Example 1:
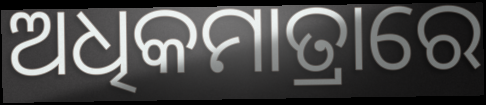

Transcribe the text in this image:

ଅଧିକମାତ୍ରାରେ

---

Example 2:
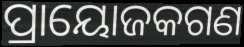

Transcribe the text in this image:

ପ୍ରାୟୋଜକଗଣ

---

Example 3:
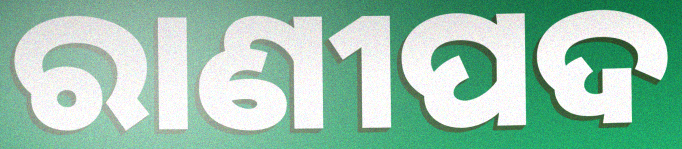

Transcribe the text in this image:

ରାଣୀପଦ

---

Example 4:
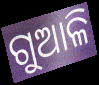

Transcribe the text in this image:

ଗୁଆଳି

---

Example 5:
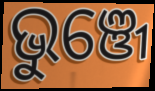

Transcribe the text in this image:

ଭୁଞ୍ଜେ